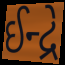
ઈન્દ્રે